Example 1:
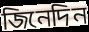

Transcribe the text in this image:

জিনেদিন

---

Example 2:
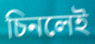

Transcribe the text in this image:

চিনলেই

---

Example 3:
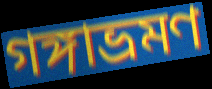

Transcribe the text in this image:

গঙ্গাভ্রমণ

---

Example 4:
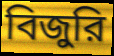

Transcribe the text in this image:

বিজুরি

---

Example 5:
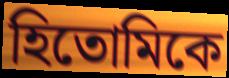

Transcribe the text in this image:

হিতোমিকে